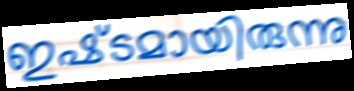
ഇഷ്‌ടമായിരുന്നു